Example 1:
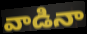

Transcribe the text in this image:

వాడినా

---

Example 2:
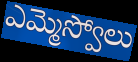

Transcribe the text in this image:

ఎమ్మెస్వోలు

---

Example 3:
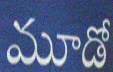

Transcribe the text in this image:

మూడో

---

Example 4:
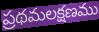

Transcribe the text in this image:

ప్రథమలక్షణము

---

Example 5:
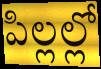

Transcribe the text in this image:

పిల్లల్లో